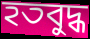
হতবুদ্ধ